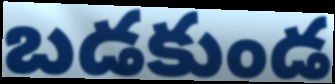
బడకుండ